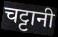
चट्टानी